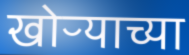
खोऱ्याच्या